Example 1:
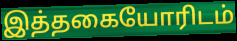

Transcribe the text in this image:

இத்தகையோரிடம்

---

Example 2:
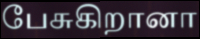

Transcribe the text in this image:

பேசுகிறானா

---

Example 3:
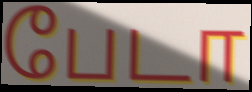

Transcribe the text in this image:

பேடா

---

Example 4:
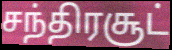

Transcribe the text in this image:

சந்திரசூட்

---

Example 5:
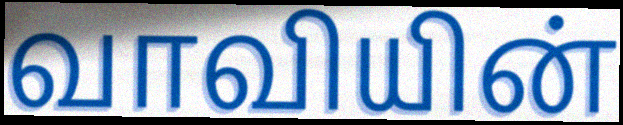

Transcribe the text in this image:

வாவியின்